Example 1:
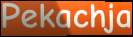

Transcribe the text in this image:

Pekachja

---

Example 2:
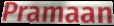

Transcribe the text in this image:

Pramaan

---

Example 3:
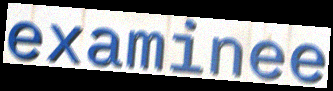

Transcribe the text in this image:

examinee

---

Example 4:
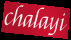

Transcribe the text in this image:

chalayi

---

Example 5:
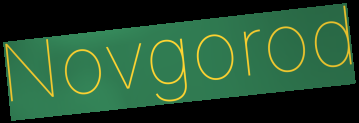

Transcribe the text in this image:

Novgorod